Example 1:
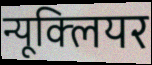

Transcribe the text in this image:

न्‍यूक्‍लियर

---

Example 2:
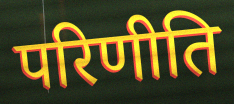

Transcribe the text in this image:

परिणीति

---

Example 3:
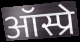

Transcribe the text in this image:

ऑस्प्रे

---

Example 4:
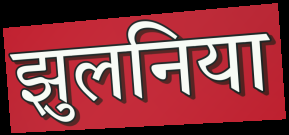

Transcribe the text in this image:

झुलनिया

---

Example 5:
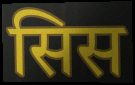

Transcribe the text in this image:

सिस